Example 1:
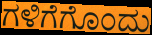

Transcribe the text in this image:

ಗಳಿಗೆಗೊಂದು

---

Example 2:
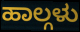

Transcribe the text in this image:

ಹಾಲ್ಗಳು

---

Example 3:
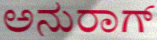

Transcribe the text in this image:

ಅನುರಾಗ್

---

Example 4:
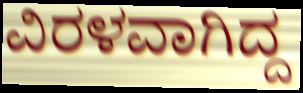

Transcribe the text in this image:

ವಿರಳವಾಗಿದ್ದ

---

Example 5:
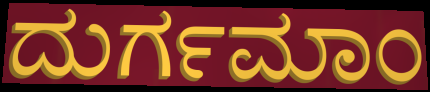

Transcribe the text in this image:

ದುರ್ಗಮಾಂ